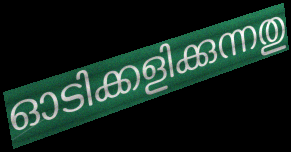
ഓടിക്കളിക്കുന്നതു